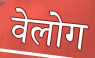
वेलोग